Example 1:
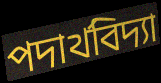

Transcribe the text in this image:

পদাৰ্থবিদ্যা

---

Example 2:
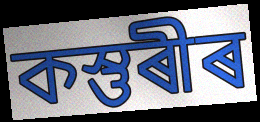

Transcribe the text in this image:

কস্তুৰীৰ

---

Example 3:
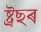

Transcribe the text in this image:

ষ্ট্ৰছৰ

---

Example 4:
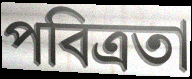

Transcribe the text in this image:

পবিত্ৰতা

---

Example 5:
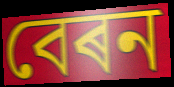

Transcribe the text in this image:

বেৰন